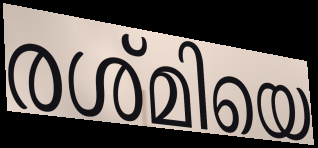
രശ്മിയെ